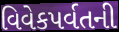
વિવેકપર્વતની